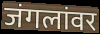
जंगलांवर